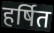
हर्षित